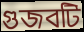
গুজবটি